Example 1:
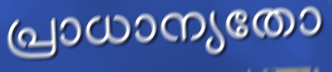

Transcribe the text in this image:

പ്രാധാന്യതോ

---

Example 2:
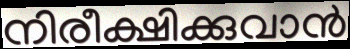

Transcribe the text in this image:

നിരീക്ഷിക്കുവാൻ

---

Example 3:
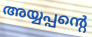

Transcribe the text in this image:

അയ്യപ്പന്റെ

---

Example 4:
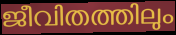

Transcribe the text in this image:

ജീവിതത്തിലും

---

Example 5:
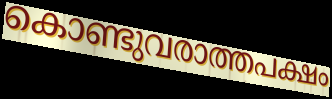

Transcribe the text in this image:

കൊണ്ടുവരാത്തപക്ഷം